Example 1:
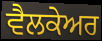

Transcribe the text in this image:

ਵੈਲਕੇਅਰ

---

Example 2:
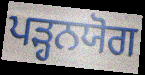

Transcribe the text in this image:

ਪੜ੍ਹਨਯੋਗ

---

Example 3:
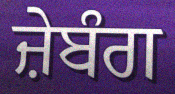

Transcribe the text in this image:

ਜ਼ੇਬੰਗ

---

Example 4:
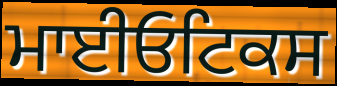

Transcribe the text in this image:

ਮਾਈਓਟਿਕਸ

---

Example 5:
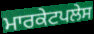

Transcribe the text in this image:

ਮਾਰਕੇਟਪਲੇਸ